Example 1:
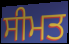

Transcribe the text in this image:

ਸੀਮਤ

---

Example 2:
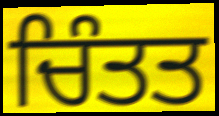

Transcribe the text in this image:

ਚਿੰਤਤ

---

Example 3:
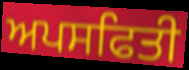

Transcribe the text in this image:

ਅਪਸਫਿਤੀ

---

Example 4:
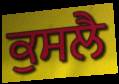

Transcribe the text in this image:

ਕੁਸਲੈ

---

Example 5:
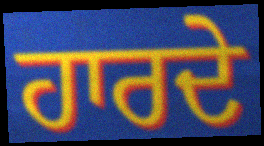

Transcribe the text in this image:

ਹਾਰਦੇ